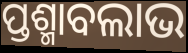
ପ୍ତଶ୍ମାବଲାଭ